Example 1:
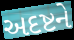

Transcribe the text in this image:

અદષ્ટને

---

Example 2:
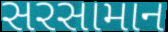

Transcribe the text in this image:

સરસામાન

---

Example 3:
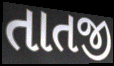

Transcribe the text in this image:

તાતજી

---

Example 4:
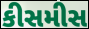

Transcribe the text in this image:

કીસમીસ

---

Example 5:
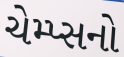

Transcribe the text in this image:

ચેમ્પ્સનો